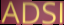
ADSI